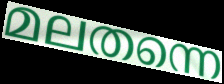
മലതന്നെ